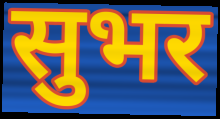
सुभर